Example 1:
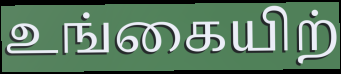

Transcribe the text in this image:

உங்கையிற்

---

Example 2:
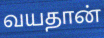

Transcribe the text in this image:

வயதான்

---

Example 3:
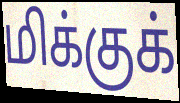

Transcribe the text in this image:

மிக்குக்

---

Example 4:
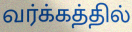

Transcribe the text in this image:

வர்க்கத்தில்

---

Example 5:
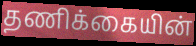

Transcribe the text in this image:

தணிக்கையின்